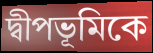
দ্বীপভূমিকে